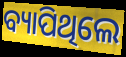
ବ୍ୟାପିଥିଲେ